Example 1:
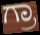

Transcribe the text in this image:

ಗ್ರಾ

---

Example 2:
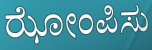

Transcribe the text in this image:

ಝೋಂಪಿಸು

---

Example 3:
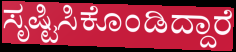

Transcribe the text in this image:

ಸೃಷ್ಟಿಸಿಕೊಂಡಿದ್ದಾರೆ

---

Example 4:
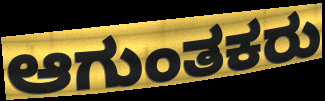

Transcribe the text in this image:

ಆಗುಂತಕರು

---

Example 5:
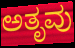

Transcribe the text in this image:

ಅತೃವು